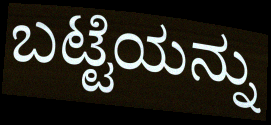
ಬಟ್ಟೆಯನ್ನು